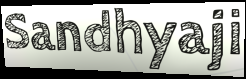
Sandhyaji